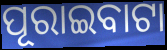
ପୂରାଇବାଟା